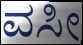
ವಸೀ